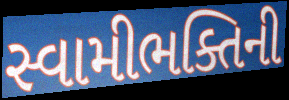
સ્વામીભક્તિની